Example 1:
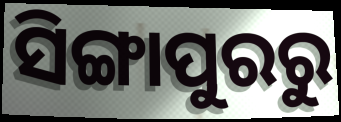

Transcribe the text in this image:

ସିଙ୍ଗାପୁରରୁ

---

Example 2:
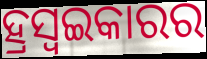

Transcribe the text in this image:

ହ୍ରସ୍ୱଇକାରର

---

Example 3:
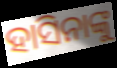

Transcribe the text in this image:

ହାସିନାଙ୍କୁ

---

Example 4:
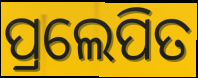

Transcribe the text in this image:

ପ୍ରଲେପିତ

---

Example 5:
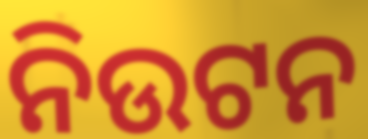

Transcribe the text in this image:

ନିଉଟନ